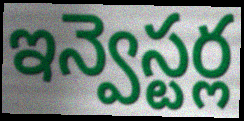
ఇన్వెస్టర్ల